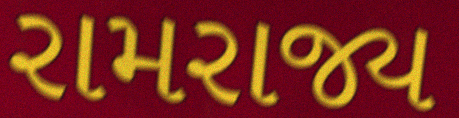
રામરાજ્ય